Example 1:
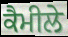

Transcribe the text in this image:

ਕੈਮੀਲੇ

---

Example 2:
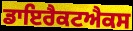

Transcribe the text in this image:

ਡਾਇਰੈਕਟਐਕਸ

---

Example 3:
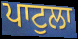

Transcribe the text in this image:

ਪਾਟੁਲਾ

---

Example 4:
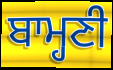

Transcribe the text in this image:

ਬਾਮ੍ਹਣੀ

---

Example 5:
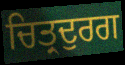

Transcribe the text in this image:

ਚਿਤ੍ਰਦੁਰਗ